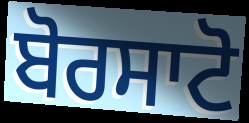
ਬੋਰਸਾਟੋ